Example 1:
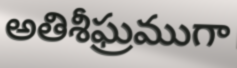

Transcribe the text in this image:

అతిశీఘ్రముగా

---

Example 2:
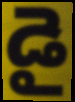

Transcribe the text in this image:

డై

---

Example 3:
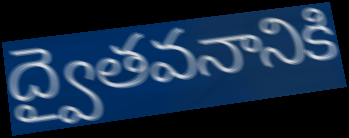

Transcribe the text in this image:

ద్వైతవనానికి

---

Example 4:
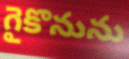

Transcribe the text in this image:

గైకొనును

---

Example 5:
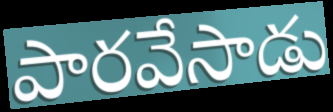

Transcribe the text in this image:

పారవేసాడు